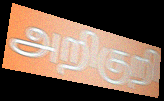
அறிகுறி